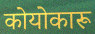
कोयोकारू